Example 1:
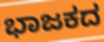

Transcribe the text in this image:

ಭಾಜಕದ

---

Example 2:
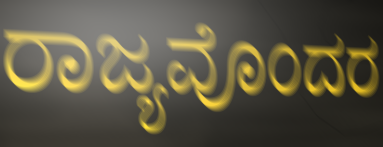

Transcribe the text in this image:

ರಾಜ್ಯವೊಂದರ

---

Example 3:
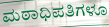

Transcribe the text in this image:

ಮಠಾಧಿಪತಿಗಳೂ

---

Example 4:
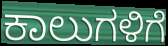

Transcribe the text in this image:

ಕಾಲುಗಳಿಗೆ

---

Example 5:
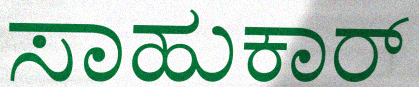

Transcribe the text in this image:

ಸಾಹುಕಾರ್